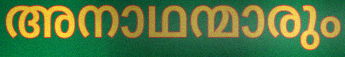
അനാഥന്മാരും